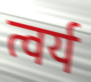
त्वर्य